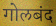
गोलबंद